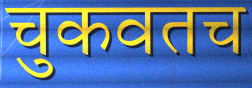
चुकवतच